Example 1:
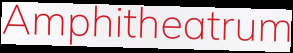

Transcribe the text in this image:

Amphitheatrum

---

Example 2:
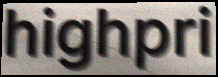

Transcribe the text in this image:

highpri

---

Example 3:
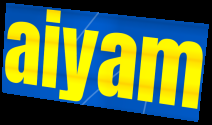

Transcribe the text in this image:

aiyam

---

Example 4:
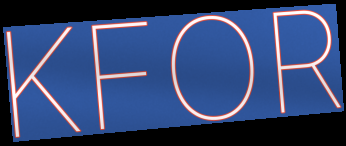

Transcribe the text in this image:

KFOR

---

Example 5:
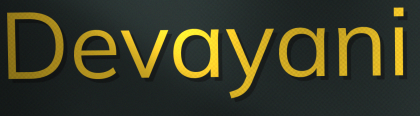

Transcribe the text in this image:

Devayani